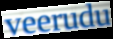
veerudu